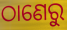
ଠାଣେରୁ